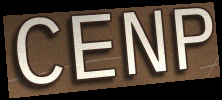
CENP